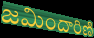
జమిందారిణి